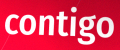
contigo